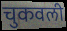
चुकवली